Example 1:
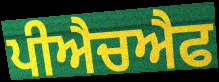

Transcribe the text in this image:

ਪੀਐਚਐਫ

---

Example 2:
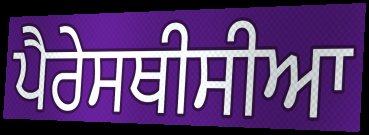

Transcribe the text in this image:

ਪੈਰੇਸਥੀਸੀਆ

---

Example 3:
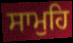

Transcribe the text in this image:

ਸਾਮੁਹਿ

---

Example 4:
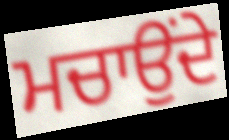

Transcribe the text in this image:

ਮਚਾਉਂਦੇ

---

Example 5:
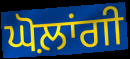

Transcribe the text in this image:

ਘੋਲ਼ਾਂਗੀ